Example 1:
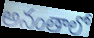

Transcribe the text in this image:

అనంతాలో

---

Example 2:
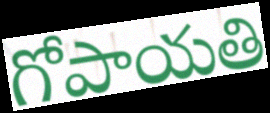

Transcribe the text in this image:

గోపాయతి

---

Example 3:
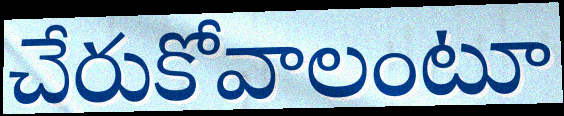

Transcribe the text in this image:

చేరుకోవాలంటూ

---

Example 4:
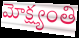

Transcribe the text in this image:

మోక్ష్యంతి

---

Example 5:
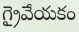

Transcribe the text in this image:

గ్రైవేయకం